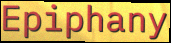
Epiphany